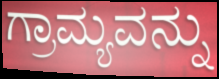
ಗ್ರಾಮ್ಯವನ್ನು